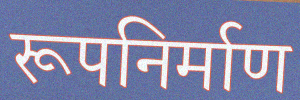
रूपनिर्माण